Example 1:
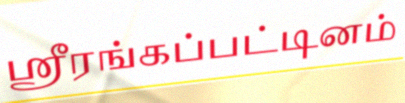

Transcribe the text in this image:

ஸ்ரீரங்கப்பட்டினம்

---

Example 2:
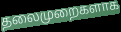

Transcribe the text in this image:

தலைமுறைகளாக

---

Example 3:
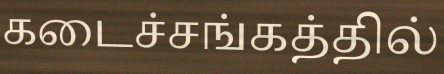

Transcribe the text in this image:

கடைச்சங்கத்தில்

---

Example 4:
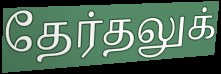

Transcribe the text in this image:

தேர்தலுக்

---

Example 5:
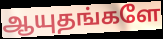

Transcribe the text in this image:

ஆயுதங்களே